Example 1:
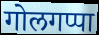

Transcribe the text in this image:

गोलगप्पा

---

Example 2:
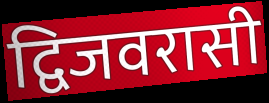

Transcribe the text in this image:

द्विजवरासी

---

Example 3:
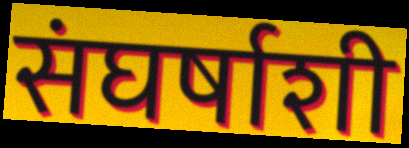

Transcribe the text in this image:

संघर्षाशी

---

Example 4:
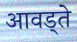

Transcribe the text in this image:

आवड्ते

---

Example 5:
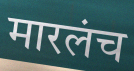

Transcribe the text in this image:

मारलंच